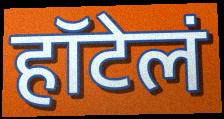
हॉटेलं